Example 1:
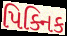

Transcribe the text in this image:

પિક્નિક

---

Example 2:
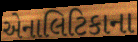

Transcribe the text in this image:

એનાલિટિકાના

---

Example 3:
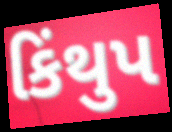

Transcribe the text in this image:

કિંથુપ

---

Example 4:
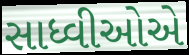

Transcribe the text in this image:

સાધ્વીઓએ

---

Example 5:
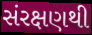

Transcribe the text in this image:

સંરક્ષણથી